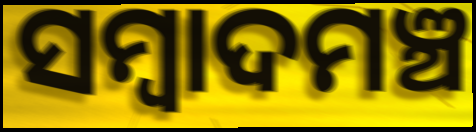
ସମ୍ୱାଦମଞ୍ଚ